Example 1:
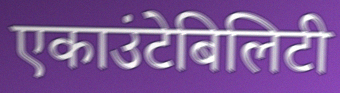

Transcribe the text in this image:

एकाउंटेबिलिटी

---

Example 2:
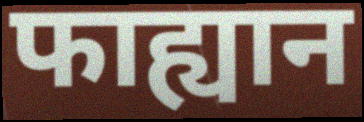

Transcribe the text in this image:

फाह्यान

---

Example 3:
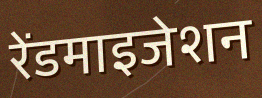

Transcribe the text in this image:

रेंडमाइजेशन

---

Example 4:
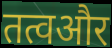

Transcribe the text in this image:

तत्वऔर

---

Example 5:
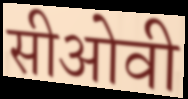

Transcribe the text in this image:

सीओवी